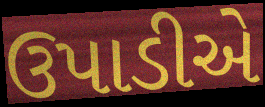
ઉપાડીએ